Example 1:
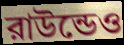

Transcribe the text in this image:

রাউন্ডেও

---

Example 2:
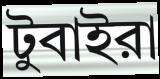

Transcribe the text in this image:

টুবাইরা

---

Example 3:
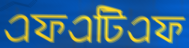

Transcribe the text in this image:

এফএটিএফ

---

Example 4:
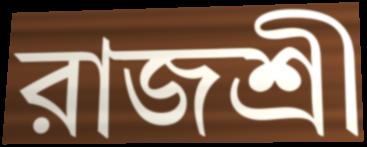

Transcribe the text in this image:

রাজশ্রী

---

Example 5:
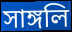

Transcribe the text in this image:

সাঙ্গলি